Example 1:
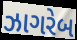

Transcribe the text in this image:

ઝાગરેબ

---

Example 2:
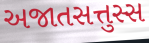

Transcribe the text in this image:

અજાતસત્તુસ્સ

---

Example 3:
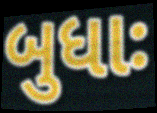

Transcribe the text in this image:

બુધાઃ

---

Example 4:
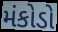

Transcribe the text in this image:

મંકોડો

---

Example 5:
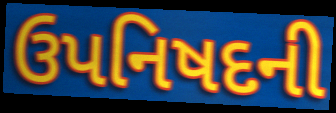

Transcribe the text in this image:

ઉપનિષદની